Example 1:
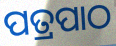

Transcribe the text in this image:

ପତ୍ରପାଠ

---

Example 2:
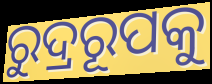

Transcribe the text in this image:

ରୁଦ୍ରରୂପକୁ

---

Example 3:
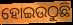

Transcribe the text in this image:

ହୋଇଉଠୁଛି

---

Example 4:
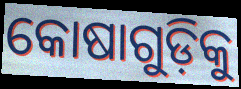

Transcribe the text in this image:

କୋଷାଗୁଡ଼ିକୁ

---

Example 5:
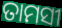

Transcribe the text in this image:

ତାମସୀ